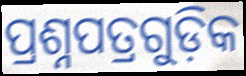
ପ୍ରଶ୍ନପତ୍ରଗୁଡ଼ିକ